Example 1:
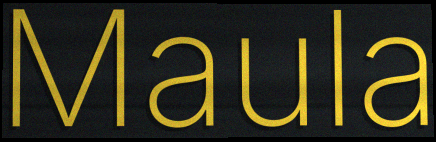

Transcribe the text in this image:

Maula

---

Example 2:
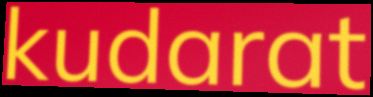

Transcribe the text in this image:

kudarat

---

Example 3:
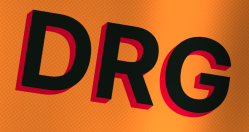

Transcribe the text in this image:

DRG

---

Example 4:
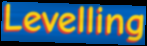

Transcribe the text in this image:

Levelling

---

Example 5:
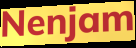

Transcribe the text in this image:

Nenjam